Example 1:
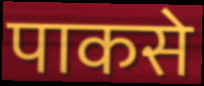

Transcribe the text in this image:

पाकसे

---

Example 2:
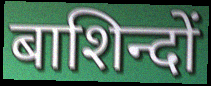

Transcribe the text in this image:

बाशिन्दों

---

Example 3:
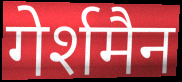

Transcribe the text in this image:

गेर्शमैन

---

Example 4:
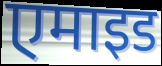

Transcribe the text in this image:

एमाइड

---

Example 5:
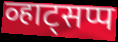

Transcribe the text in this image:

व्हाट्सप्प